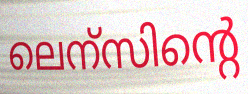
ലെന്സിന്റെ